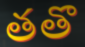
తతొ